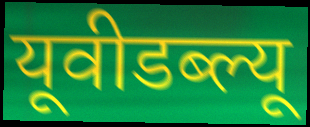
यूवीडब्ल्यू